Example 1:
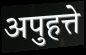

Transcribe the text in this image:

अपुहत्ते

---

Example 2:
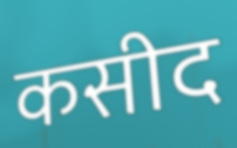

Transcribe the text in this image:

कसीद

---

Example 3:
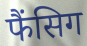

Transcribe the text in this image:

फैंसिग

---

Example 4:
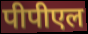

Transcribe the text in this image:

पीपीएल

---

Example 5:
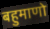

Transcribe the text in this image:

बहुमाणो